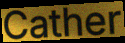
Cather